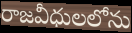
రాజవీధులలోను